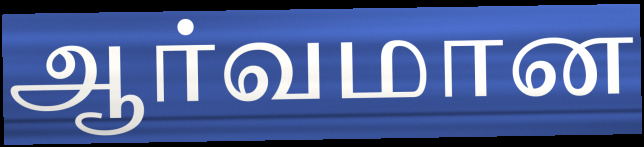
ஆர்வமான